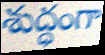
శుద్ధంగా